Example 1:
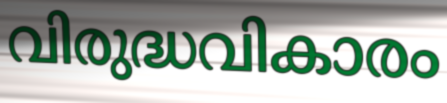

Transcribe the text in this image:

വിരുദ്ധവികാരം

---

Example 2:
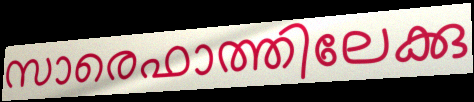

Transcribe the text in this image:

സാരെഫാത്തിലേക്കു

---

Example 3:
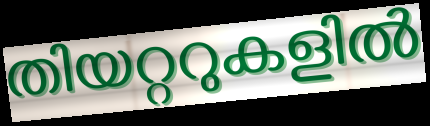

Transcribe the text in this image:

തിയറ്ററുകളിൽ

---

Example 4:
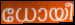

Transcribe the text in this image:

ധോയീ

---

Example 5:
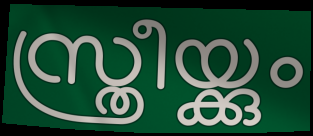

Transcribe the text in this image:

സ്ത്രീയ്ക്കും